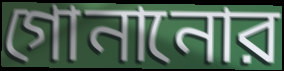
গোনানোর